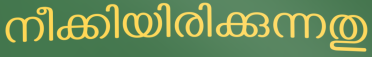
നീക്കിയിരിക്കുന്നതു